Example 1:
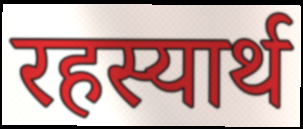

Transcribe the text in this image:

रहस्यार्थ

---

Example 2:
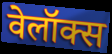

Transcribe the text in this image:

वेलॉक्स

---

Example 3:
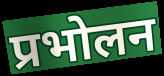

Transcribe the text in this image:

प्रभोलन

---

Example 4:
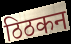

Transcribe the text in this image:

ठिठकन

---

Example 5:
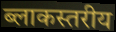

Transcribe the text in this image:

ब्लाकस्तरीय